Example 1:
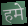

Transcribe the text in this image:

हमे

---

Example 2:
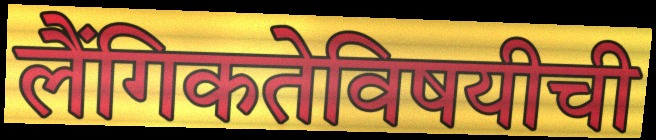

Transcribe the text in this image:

लैंगिकतेविषयीची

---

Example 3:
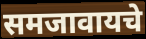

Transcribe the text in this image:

समजावायचे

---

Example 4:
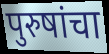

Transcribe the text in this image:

पुरुषांचा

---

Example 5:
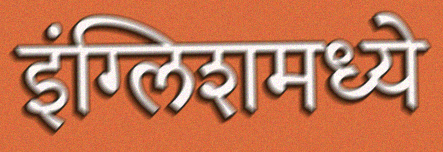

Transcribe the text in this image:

इंग्लिशमध्ये